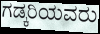
ಗಡ್ಕರಿಯವರು